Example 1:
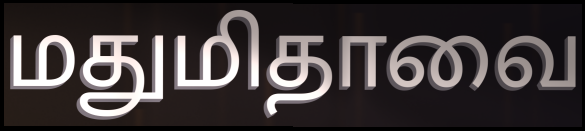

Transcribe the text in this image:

மதுமிதாவை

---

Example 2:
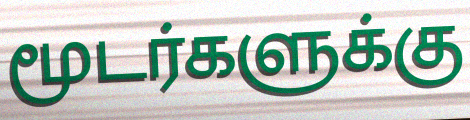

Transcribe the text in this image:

மூடர்களுக்கு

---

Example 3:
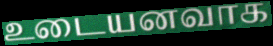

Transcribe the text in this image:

உடையனவாக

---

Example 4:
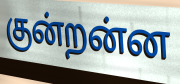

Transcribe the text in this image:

குன்றன்ன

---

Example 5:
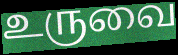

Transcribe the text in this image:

உருவை